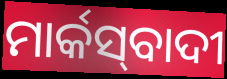
ମାର୍କସ୍‍ବାଦୀ